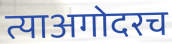
त्याअगोदरच